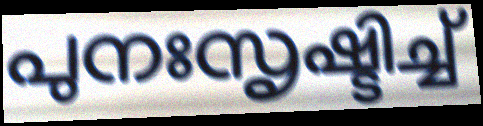
പുനഃസൃഷ്ടിച്ച്